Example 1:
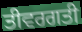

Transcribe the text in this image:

ਤੀਵਰਗਤੀ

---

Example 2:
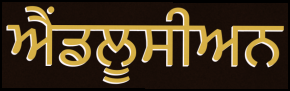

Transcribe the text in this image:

ਐਂਡਲੂਸੀਅਨ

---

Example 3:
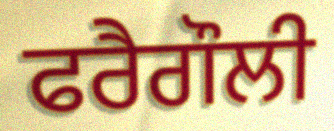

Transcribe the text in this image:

ਫਰੈਗੌਲੀ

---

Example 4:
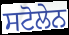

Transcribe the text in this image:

ਸਟੋਲੇਨ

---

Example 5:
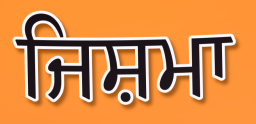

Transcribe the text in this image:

ਜਿਸ਼ਮਾ